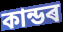
কান্ডৰ